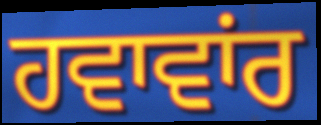
ਹਵਾਵਾਂਰ